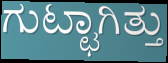
ಗುಟ್ಟಾಗಿತ್ತು